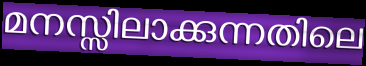
മനസ്സിലാക്കുന്നതിലെ